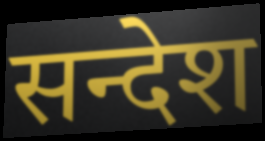
सन्देश